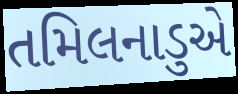
તમિલનાડુએ